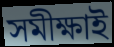
সমীক্ষাই